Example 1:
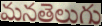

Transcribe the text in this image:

మనతెలుగు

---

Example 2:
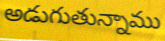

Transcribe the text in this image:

అడుగుతున్నాము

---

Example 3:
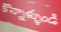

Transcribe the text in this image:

కొన్నాళ్ళుండి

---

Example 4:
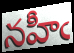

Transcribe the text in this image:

నహీఁ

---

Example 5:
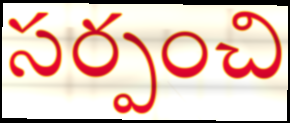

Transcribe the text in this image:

సర్పంచి